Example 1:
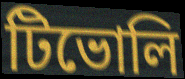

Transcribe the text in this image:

টিভোলি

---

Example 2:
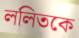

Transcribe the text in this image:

ললিতকে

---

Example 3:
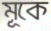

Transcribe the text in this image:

মূকে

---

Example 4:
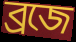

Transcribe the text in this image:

ব্রজে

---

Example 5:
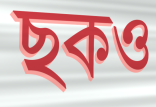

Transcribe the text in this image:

ছকও